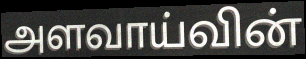
அளவாய்வின்